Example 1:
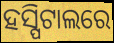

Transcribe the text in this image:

ହସ୍ପିଟାଲରେ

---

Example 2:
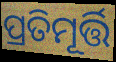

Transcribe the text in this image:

ପ୍ରତିମୂର୍ତ୍ତି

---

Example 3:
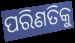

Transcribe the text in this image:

ପରିଣତିକୁ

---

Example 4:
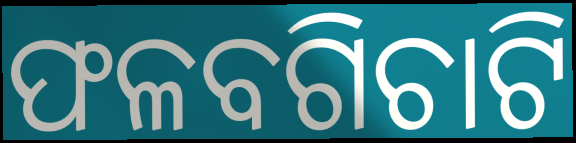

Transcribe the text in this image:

ଫଳବଗିଚାଟି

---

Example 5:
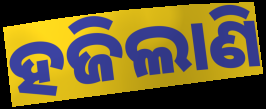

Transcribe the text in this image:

ହଜିଲାଣି